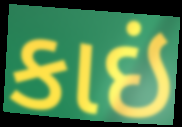
કાઇં